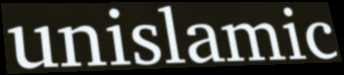
unislamic